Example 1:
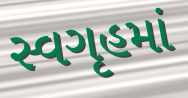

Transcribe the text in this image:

સ્વગૃહમાં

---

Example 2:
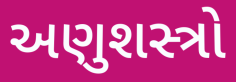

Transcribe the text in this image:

અણુશસ્ત્રો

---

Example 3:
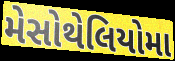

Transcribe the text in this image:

મેસોથેલિયોમા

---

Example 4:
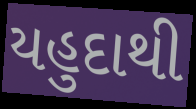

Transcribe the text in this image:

યહુદાથી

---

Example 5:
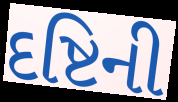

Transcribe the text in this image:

દષ્ટિની